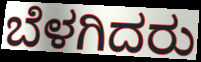
ಬೆಳಗಿದರು